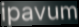
ipavum